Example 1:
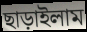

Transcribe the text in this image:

ছাড়াইলাম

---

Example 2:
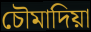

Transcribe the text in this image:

চৌমাদিয়া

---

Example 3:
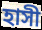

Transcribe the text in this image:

হাসী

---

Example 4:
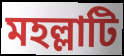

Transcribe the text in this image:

মহল্লাটি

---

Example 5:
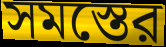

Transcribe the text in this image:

সমস্তের